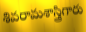
శివరామశాస్త్రిగారు